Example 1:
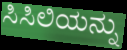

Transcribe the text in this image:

ಸಿಸಿಲಿಯನ್ನು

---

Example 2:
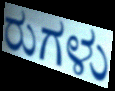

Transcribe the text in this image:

ರುಗಳು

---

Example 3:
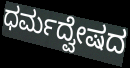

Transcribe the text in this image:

ಧರ್ಮದ್ವೇಷದ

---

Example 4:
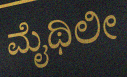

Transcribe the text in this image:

ಮೈಥಿಲೀ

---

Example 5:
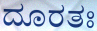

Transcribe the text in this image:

ದೂರತಃ